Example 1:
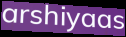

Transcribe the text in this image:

arshiyaas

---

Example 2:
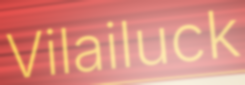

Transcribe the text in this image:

Vilailuck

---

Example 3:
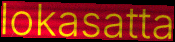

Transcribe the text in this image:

lokasatta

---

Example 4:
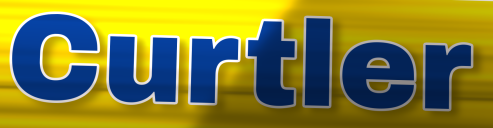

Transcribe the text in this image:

Curtler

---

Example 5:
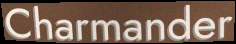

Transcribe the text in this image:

Charmander